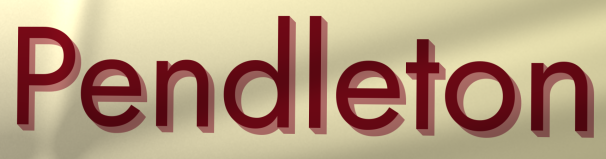
Pendleton